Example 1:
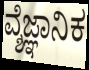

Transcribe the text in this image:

ವ್ಶೆಜ್ಞಾನಿಕ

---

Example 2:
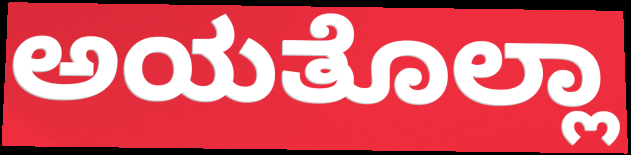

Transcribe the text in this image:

ಅಯತೊಲ್ಲಾ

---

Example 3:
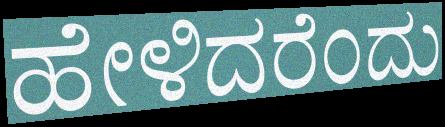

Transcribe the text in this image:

ಹೇಳಿದರೆಂದು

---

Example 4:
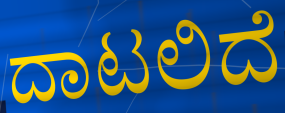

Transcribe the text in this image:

ದಾಟಲಿದೆ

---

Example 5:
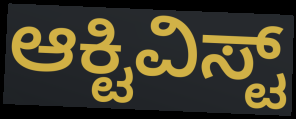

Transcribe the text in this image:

ಆಕ್ಟಿವಿಸ್ಟ್